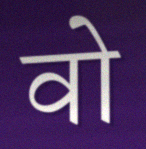
वो